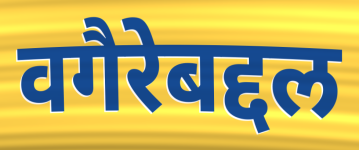
वगैरेबद्दल